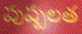
పుష్పలత